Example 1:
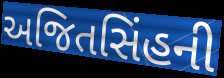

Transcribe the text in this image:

અજિતસિંહની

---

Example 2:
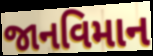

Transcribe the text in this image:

જાનવિમાન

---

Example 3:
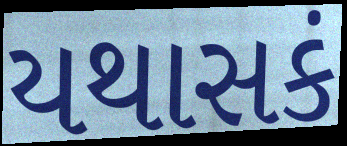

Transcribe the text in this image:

યથાસકં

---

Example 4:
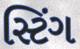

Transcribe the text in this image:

સ્ટિંગ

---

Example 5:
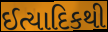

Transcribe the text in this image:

ઈત્યાદિકથી